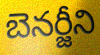
బెనర్జీని